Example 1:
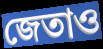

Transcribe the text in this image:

জেতাও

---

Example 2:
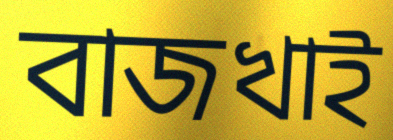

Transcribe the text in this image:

বাজখাই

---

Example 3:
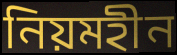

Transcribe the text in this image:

নিয়মহীন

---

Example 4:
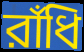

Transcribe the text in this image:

রাঁধি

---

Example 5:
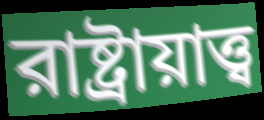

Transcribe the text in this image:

রাষ্ট্রায়াত্ত্ব